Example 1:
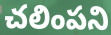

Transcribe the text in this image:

చలింపని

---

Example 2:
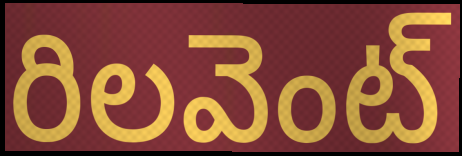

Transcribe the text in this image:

రిలవెంట్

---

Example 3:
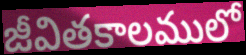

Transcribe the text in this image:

జీవితకాలములో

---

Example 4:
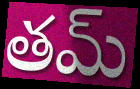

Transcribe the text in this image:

తమ్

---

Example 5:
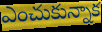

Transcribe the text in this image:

ఎంచుకున్నాక